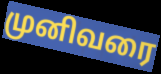
முனிவரை